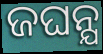
ଜଘନ୍ଯ